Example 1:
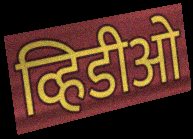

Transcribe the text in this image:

व्हिडीओ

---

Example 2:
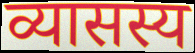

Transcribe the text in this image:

व्यासस्य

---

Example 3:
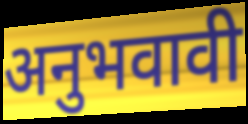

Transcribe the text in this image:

अनुभवावी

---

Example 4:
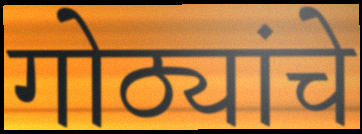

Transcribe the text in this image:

गोठ्यांचे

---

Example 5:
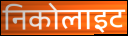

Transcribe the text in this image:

निकोलाइट